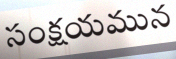
సంక్షయమున